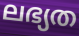
ലഭ്യത